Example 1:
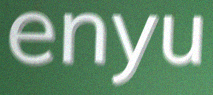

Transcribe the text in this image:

enyu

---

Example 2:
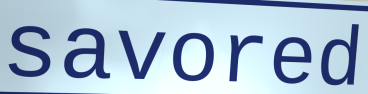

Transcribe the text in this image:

savored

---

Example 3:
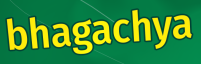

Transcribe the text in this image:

bhagachya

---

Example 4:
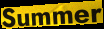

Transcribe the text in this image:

Summer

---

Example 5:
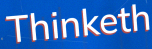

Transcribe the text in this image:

Thinketh